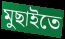
মুছাইতে